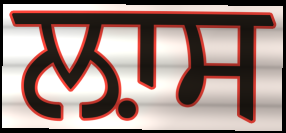
ਲ਼ਾਸ